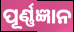
ପୂର୍ଣ୍ଣଜ୍ଞାନ